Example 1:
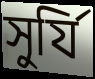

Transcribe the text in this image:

সুর্যি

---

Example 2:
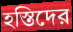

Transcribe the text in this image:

হস্তিদের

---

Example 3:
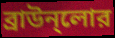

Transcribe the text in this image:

ব্রাউন্লোর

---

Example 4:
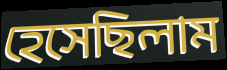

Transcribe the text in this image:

হেসেছিলাম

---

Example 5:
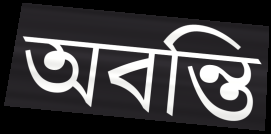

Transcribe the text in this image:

অবন্তি